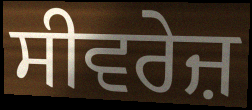
ਸੀਵਰੇਜ਼